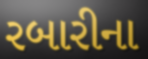
રબારીના